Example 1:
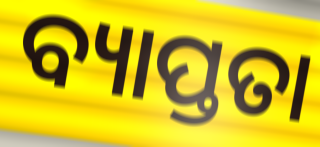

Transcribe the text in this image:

ବ୍ୟାପ୍ତତା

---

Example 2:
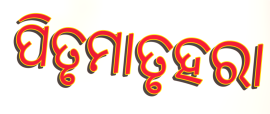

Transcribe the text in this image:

ପିତୃମାତୃହରା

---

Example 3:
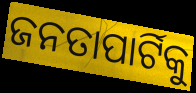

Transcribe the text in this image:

ଜନତାପାର୍ଟିକୁ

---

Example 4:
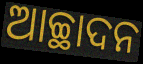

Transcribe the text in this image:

ଆଚ୍ଛାଦନ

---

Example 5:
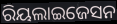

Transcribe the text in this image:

ରିୟଲାଇଜେସନ